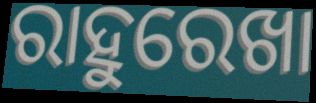
ରାହୁରେଖା